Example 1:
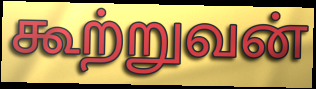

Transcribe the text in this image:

கூற்றுவன்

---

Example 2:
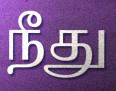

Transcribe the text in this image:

நீது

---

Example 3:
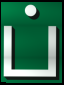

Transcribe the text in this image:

ப்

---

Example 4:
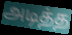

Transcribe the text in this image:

அடித்த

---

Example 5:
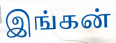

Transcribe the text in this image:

இங்கன்